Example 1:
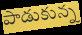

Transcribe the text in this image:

పాడుకున్న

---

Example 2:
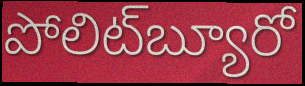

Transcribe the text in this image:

పోలిట్‌బ్యూరో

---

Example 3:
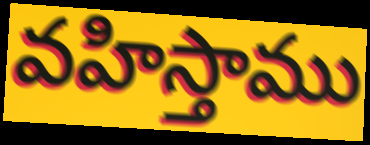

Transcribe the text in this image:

వహిస్తాము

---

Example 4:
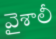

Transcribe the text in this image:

వైశాలీ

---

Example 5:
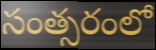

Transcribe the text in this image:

సంత్సరంలో